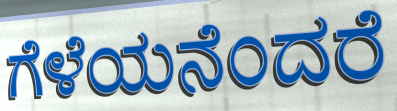
ಗೆಳೆಯನೆಂದರೆ